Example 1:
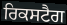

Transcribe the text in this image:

ਰਿਕਸਟੈਗ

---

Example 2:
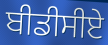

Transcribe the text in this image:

ਬੀਡੀਸੀਏ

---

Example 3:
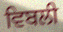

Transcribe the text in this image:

ਵਿਬਲੀ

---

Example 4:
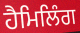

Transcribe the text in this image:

ਹੈਮਿਲਿੰਗ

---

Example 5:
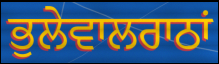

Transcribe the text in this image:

ਭੁਲੇਵਾਲਰਾਠਾਂ